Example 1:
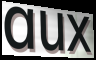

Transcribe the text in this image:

aux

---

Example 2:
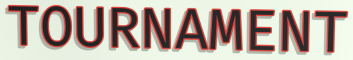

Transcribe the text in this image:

TOURNAMENT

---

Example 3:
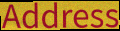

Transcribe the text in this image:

Address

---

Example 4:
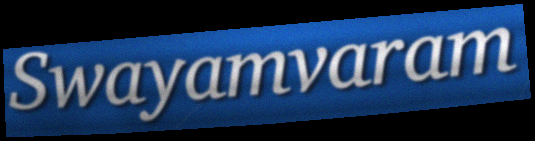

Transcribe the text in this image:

Swayamvaram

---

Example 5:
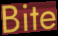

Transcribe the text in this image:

Bite